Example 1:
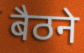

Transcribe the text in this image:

बैठने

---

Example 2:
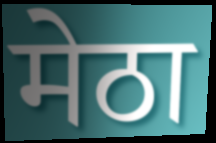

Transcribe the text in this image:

मेठा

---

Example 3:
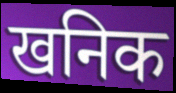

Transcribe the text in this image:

खनिक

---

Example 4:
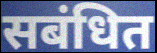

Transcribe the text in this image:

सबंधित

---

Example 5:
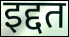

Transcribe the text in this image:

इद्दत